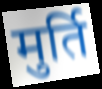
मुर्ति